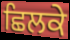
ਛਿਲਕੇ